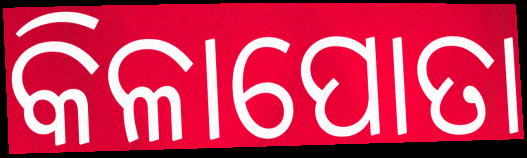
କିଳାପୋତା